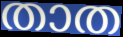
താത